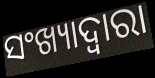
ସଂଖ୍ୟାଦ୍ୱାରା